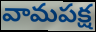
వామపక్ష